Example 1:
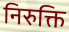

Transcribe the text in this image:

निरुक्ति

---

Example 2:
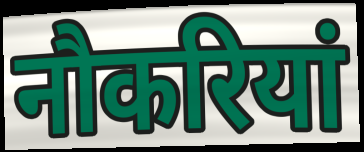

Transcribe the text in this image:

नौकरियां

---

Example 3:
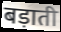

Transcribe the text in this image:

बड़ाती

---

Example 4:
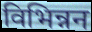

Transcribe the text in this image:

विभिन्नन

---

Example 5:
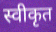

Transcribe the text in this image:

स्वीकृत